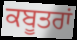
ਕਬੂਤਰਾਂ